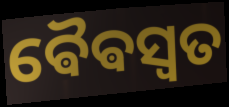
ଵୈଵସ୍ୱତ